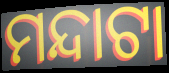
ମନ୍ଦାଟା